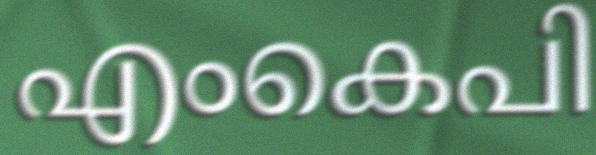
എംകെപി